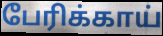
பேரிக்காய்